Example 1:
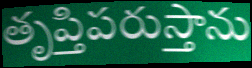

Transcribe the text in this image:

తృప్తిపరుస్తాను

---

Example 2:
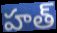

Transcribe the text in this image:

హత్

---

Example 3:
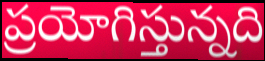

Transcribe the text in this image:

ప్రయోగిస్తున్నది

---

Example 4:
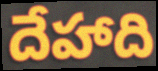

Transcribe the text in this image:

దేహాది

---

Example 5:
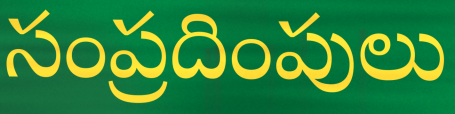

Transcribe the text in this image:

సంప్రదింపులు